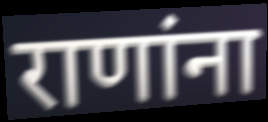
राणांना